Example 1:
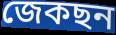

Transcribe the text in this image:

জেকছন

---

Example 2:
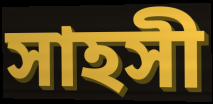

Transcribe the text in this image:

সাহসী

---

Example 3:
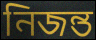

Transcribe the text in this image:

নিজন্ত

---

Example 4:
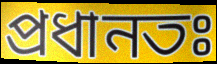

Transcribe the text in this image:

প্ৰধানতঃ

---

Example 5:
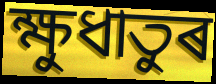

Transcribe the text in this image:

ক্ষুধাতুৰ